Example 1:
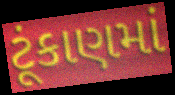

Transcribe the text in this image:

ટૂંકાણમાં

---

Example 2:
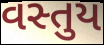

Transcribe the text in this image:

વસ્તુય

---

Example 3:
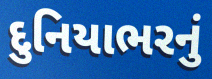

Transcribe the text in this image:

દુનિયાભરનું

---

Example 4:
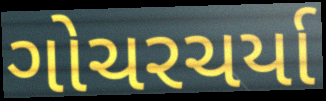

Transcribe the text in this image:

ગોચરચર્યા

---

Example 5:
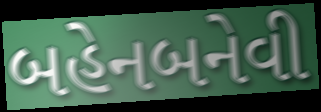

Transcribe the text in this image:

બહેનબનેવી